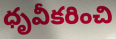
ధృవీకరించి